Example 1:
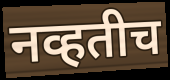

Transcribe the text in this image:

नव्हतीच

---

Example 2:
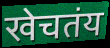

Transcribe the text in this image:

खेचतंय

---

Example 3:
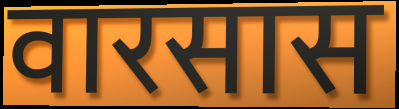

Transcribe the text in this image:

वारसास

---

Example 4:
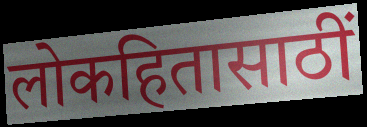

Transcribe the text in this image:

लोकहितासाठीं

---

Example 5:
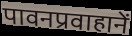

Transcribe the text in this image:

पावनप्रवाहानें